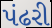
પંઢરી